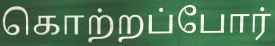
கொற்றப்போர்